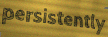
persistently